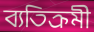
ব্যতিক্ৰমী